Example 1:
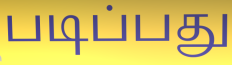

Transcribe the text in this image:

படிப்பது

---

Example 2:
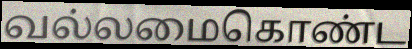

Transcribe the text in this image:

வல்லமைகொண்ட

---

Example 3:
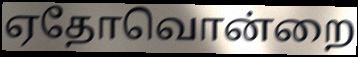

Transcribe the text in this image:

ஏதோவொன்றை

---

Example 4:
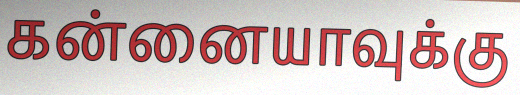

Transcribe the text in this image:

கன்னையாவுக்கு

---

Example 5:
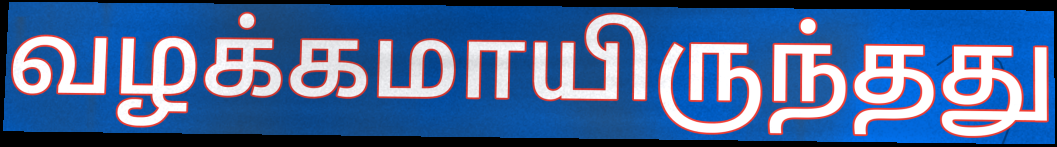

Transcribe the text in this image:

வழக்கமாயிருந்தது